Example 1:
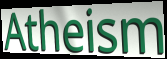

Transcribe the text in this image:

Atheism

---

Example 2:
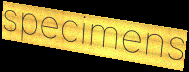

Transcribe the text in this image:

specimens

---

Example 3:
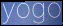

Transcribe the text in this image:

yogo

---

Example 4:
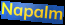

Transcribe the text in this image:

Napalm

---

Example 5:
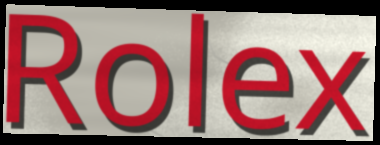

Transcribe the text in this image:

Rolex